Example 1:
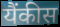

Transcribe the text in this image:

यैंकीस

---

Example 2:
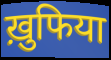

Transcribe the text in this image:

ख़ुफिया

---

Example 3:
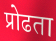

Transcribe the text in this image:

प्रोढता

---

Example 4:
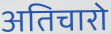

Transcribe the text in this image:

अतिचारो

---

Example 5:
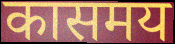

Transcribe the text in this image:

कासमय